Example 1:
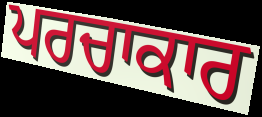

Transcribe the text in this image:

ਪਰਚਾਕਾਰ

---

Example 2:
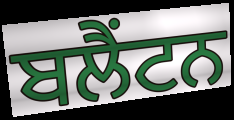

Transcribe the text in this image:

ਬਲੈਂਟਨ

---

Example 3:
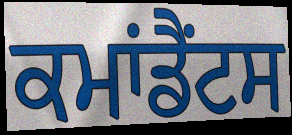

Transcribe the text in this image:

ਕਮਾਂਡੈਂਟਸ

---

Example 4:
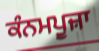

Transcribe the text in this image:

ਕੰਨਮਪੂਜ਼ਾ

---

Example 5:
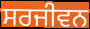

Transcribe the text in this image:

ਸਰਜੀਵਨ